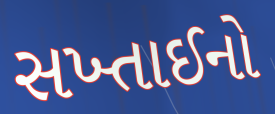
સખ્તાઈનો